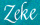
Zeke